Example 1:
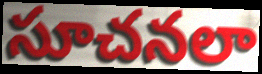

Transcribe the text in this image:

సూచనలా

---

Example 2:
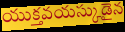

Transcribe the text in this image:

యుక్తవయస్కుడైన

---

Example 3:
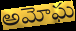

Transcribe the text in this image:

అమోఘ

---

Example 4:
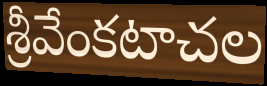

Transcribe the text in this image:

శ్రీవేంకటాచల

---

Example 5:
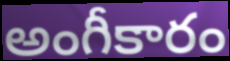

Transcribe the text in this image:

అంగీకారం